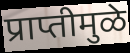
प्राप्तीमुळे